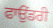
ਫਾਉਂਡਰੀ